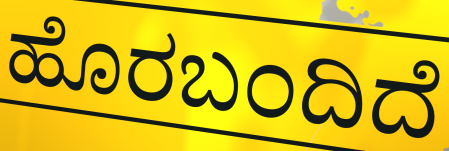
ಹೊರಬಂದಿದೆ